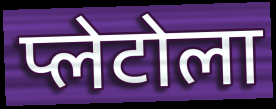
प्लेटोला